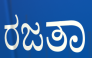
ರಜತಾ